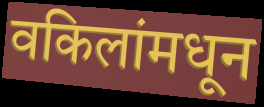
वकिलांमधून